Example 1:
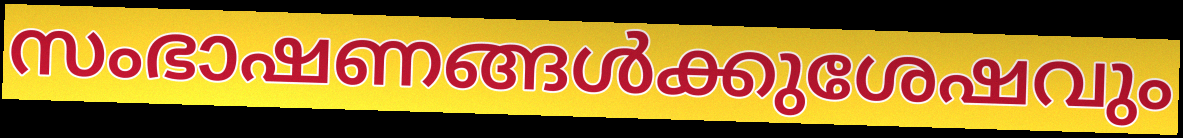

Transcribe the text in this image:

സംഭാഷണങ്ങൾക്കുശേഷവും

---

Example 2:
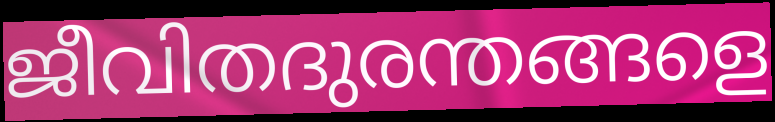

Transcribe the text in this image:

ജീവിതദുരന്തങ്ങളെ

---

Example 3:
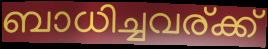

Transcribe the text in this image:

ബാധിച്ചവര്ക്ക്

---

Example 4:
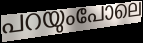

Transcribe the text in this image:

പറയുംപോലെ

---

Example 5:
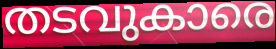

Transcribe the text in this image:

തടവുകാരെ